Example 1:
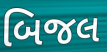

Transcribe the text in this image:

બિજલ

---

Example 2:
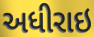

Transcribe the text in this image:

અધીરાઇ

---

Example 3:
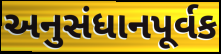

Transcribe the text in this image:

અનુસંધાનપૂર્વક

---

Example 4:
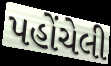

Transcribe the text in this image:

પહોંચેલી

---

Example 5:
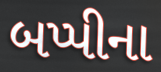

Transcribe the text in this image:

બપ્પીના